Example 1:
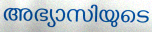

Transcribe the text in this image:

അഭ്യാസിയുടെ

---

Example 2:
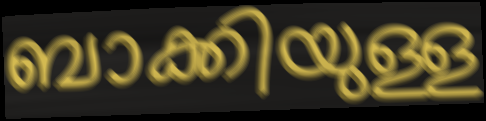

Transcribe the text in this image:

ബാക്കിയുള്ള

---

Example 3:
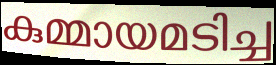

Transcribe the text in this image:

കുമ്മായമടിച്ച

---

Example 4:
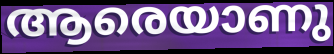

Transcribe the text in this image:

ആരെയാണു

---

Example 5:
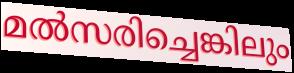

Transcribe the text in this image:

മൽസരിച്ചെങ്കിലും